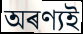
অৰণ্যই